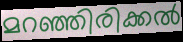
മറഞ്ഞിരിക്കൽ